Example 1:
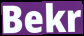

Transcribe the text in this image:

Bekr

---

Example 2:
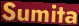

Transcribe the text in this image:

Sumita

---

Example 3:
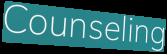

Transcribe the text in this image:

Counseling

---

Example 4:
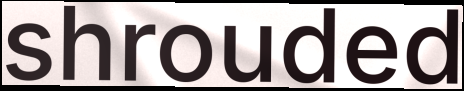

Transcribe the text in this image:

shrouded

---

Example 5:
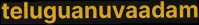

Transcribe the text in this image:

teluguanuvaadam